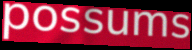
possums